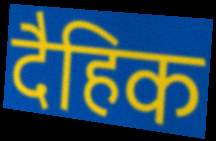
दैहिक